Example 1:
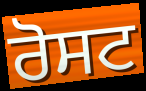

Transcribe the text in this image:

ਰੋਸਟ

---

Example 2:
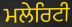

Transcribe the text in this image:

ਮਲੇਰਿਟੀ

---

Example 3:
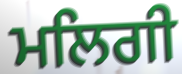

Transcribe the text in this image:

ਮਲਿਗੀ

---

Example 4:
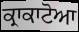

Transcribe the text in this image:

ਕ੍ਰਾਕਾਟੋਆ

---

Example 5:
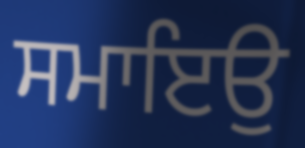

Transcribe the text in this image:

ਸਮਾਇਉ